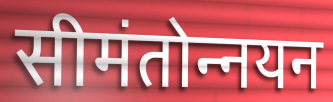
सीमंतोन्नयन